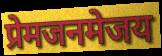
प्रेमजनमेजय